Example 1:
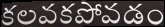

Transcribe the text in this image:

కలవకపోవడం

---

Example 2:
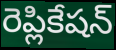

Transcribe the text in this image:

రెప్లికేషన్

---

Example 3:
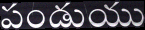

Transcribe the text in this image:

పండుయు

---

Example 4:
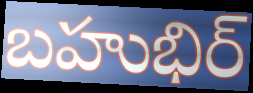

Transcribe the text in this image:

బహుభిర్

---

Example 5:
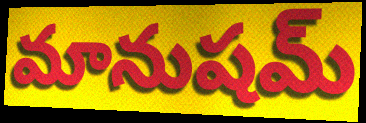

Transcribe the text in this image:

మానుషమ్